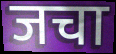
जचा